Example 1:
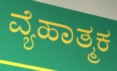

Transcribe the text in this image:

ವ್ಯೆಹಾತ್ಮಕ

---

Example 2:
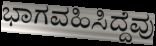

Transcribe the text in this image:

ಭಾಗವಹಿಸಿದ್ದೆವು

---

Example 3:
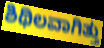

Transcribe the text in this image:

ಶಿಥಿಲವಾಗಿತ್ತು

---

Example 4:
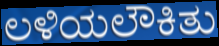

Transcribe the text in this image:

ಲಳಿಯಲೌಕಿತು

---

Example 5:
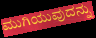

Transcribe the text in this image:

ಮುಗಿಯುವುದನ್ನು